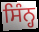
ਸਿੰਨ੍ਹ